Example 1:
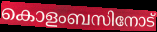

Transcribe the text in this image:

കൊളംബസിനോട്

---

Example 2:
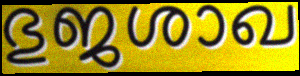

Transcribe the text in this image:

ഭുജശാഖ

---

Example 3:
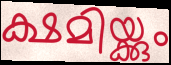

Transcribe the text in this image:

ക്ഷമിയ്ക്കും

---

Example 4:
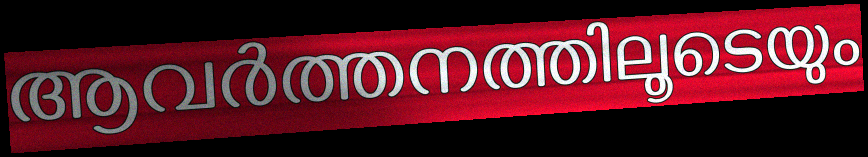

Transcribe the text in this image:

ആവർത്തനത്തിലൂടെയും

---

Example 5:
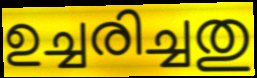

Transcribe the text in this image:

ഉച്ചരിച്ചതു